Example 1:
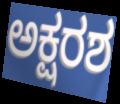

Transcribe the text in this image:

ಅಕ್ಷರಶ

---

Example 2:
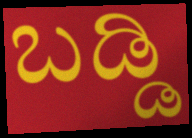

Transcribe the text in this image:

ಬಡ್ಡಿ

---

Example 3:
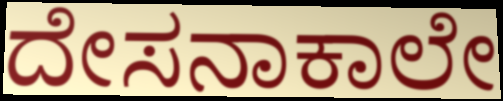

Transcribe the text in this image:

ದೇಸನಾಕಾಲೇ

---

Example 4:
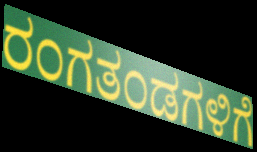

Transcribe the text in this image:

ರಂಗತಂಡಗಳಿಗೆ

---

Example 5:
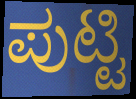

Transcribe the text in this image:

ಪುಟ್ಟಿ